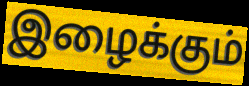
இழைக்கும்